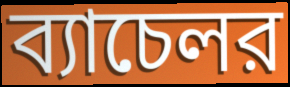
ব্যাচেলর